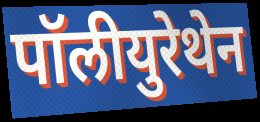
पॉलीयुरेथेन